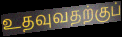
உதவுவதற்குப்